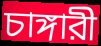
চাঙ্গারী